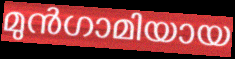
മുൻഗാമിയായ